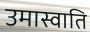
उमास्वाति